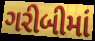
ગરીબીમાં